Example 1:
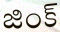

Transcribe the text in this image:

జింక్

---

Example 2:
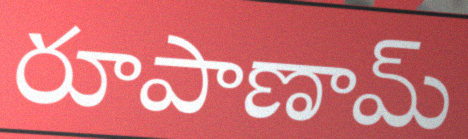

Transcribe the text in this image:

రూపాణామ్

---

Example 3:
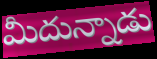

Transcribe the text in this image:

మీదున్నాడు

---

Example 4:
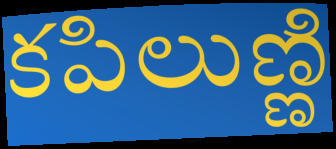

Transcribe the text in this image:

కపిలుణ్ణి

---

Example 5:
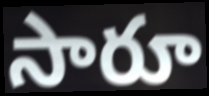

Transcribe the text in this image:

సారూ